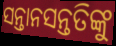
ସନ୍ତାନସନ୍ତତିଙ୍କୁ